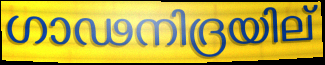
ഗാഢനിദ്രയില്